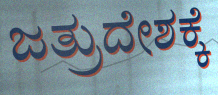
ಜತ್ರುದೇಶಕ್ಕೆ